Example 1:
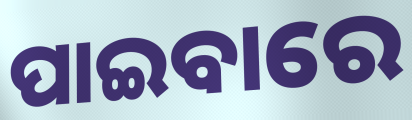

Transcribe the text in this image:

ପାଇବାରେ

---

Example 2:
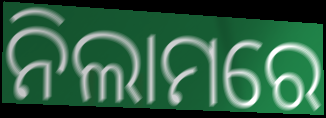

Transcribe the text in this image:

ନିଲାମରେ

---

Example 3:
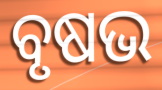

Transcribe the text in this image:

ବୃଷଭ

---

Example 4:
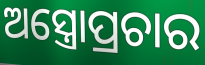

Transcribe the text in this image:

ଅସ୍ତ୍ରୋପ୍ରଚାର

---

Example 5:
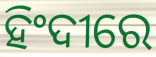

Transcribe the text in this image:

ହିଂଦୀରେ